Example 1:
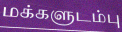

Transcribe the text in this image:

மக்களுடம்பு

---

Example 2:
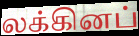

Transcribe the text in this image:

லக்கினப்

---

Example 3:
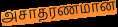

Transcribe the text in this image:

அசாதரணமான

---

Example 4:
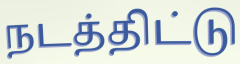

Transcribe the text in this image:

நடத்திட்டு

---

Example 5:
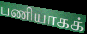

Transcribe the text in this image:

பணியாகக்